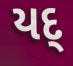
યદ્